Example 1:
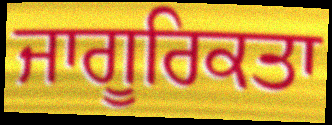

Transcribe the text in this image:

ਜਾਗੂਰਿਕਤਾ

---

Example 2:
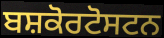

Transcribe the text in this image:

ਬਸ਼ਕੋਰਟੋਸਟਨ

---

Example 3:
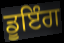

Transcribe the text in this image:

ਡੂਇੰਗ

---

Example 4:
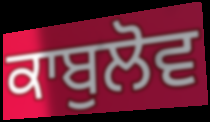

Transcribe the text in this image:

ਕਾਬੁਲੋਵ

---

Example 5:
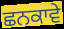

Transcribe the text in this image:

ਛਨਕਾਵੇ